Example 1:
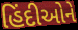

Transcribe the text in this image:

હિંદીઓને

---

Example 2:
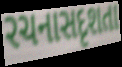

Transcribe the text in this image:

રચનાસદૃશતા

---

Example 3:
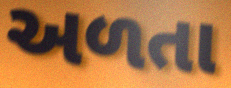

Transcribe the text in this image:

અળતા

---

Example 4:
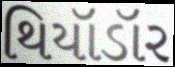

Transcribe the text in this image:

થિયૉડૉર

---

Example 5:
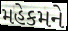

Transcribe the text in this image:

મહેકમને